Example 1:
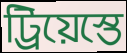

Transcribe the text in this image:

ট্ৰিয়েস্তে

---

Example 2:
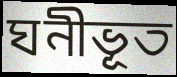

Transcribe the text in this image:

ঘনীভূত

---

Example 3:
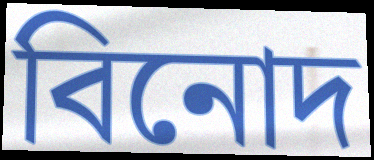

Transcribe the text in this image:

বিনোদ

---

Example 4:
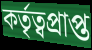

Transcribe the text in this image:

কৰ্তৃত্বপ্ৰাপ্ত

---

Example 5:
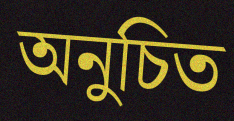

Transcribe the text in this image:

অনুচিত